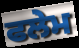
ਫਲੇਮ